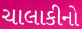
ચાલાકીનો